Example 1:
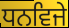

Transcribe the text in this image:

ਧਨਵਿਜੇ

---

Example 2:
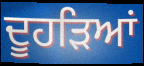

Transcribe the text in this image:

ਦੂਹੜਿਆਂ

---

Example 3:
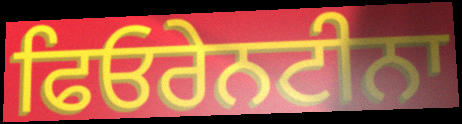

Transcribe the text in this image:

ਫਿਓਰੇਨਟੀਨਾ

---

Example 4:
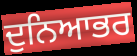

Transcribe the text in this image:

ਦੁਨਿਆਭਰ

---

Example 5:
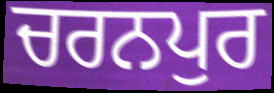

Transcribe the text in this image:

ਚਰਨਪੁਰ